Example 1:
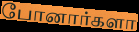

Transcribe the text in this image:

போனார்களா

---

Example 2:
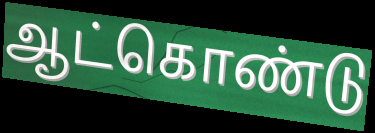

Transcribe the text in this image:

ஆட்கொண்டு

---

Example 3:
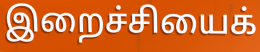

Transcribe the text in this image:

இறைச்சியைக்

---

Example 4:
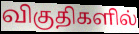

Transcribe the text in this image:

விகுதிகளில்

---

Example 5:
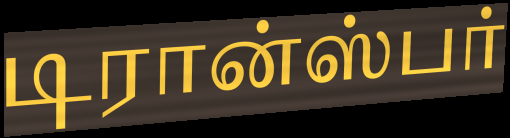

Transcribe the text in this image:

டிரான்ஸ்பர்